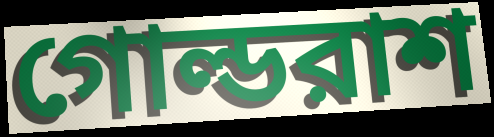
গোল্ডরাশ